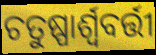
ଚତୁଷ୍ପାର୍ଶ୍ୱବର୍ତ୍ତୀ